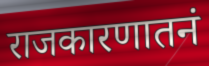
राजकारणातनं